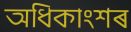
অধিকাংশৰ